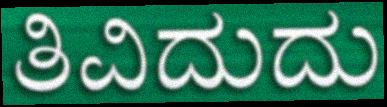
ತಿವಿದುದು